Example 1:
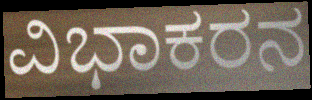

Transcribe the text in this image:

ವಿಭಾಕರನ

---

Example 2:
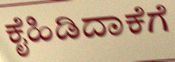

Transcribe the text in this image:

ಕೈಹಿಡಿದಾಕೆಗೆ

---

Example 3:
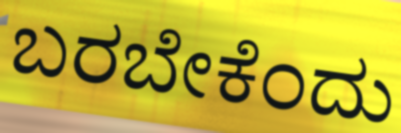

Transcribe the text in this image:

ಬರಬೇಕೆಂದು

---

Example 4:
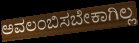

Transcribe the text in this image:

ಅವಲಂಬಿಸಬೇಕಾಗಿಲ್ಲ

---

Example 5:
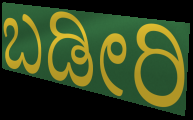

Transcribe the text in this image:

ಬಡೀರಿ